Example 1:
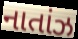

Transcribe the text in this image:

નાતાંઝ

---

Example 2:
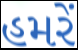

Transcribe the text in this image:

હમરેં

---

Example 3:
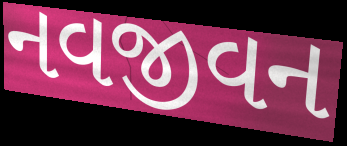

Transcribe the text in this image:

નવજીવન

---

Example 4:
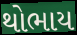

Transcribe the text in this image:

થોભાય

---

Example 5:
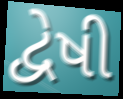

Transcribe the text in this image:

દ્વેષી